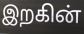
இறகின்